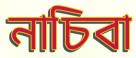
নাচিবা